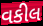
વકીલ